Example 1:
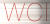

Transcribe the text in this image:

WCI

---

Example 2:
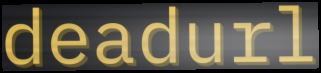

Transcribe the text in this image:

deadurl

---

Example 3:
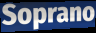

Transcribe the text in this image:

Soprano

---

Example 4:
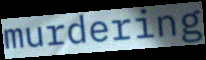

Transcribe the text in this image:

murdering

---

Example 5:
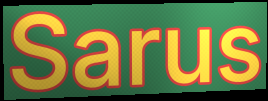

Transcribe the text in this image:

Sarus